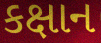
કક્ષાન